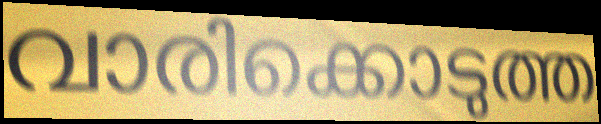
വാരിക്കൊടുത്ത